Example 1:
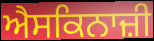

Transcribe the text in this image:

ਐਸਕਿਨਾਜ਼ੀ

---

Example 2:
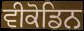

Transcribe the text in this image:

ਵੀਕੋਡਿਨ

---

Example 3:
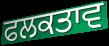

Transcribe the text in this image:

ਫਲਕਤਾਵ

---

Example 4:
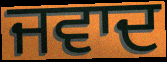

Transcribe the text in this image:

ਜਵਾਦ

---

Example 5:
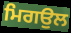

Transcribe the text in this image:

ਮਿਗਉਲ